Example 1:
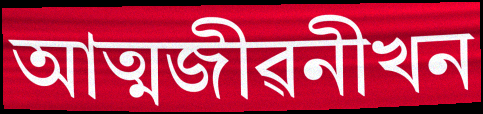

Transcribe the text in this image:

আত্মজীৱনীখন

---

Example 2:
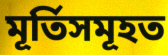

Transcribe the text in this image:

মূৰ্তিসমূহত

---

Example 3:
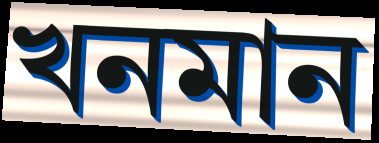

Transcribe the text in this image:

খনমান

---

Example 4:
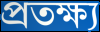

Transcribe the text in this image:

প্ৰতক্ষ্য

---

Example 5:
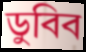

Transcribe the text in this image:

ডুবিব